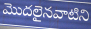
మొదలైనవాటిని